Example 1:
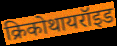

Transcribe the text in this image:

क्रिकोथायरॉइड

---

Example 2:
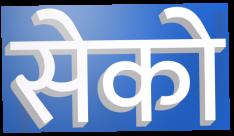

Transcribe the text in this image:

सेको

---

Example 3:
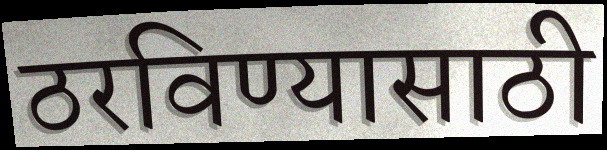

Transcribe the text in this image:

ठरविण्यासाठी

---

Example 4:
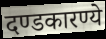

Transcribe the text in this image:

दण्डकारण्ये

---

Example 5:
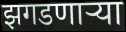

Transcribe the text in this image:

झगडणाऱ्या